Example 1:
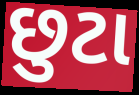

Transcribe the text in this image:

છુટા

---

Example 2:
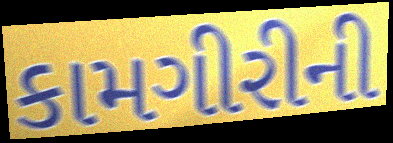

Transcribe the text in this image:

કામગીરીની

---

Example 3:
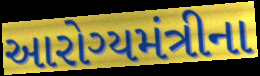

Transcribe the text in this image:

આરોગ્યમંત્રીના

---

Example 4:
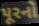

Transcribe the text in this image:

પૂરનો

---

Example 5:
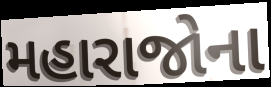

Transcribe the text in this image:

મહારાજોના